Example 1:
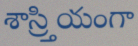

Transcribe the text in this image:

శాస్ర్తియంగా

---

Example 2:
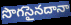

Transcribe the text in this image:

సొగసైనదానా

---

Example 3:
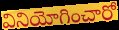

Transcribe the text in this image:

వినియోగించారో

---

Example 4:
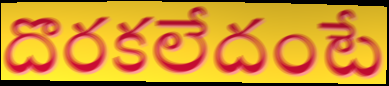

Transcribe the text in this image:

దొరకలేదంటే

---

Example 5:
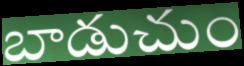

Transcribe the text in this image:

బాడుచుం